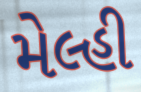
મેલ્હી